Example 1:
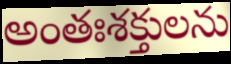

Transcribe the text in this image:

అంతఃశక్తులను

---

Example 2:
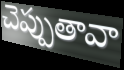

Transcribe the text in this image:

చెప్పుతావా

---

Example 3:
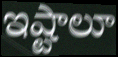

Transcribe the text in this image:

ఇష్టాలూ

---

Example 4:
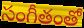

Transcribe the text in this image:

సంగీతంతో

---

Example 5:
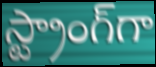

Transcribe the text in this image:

స్ట్రాంగ్‌గా